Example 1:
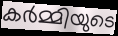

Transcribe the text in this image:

കർമ്മിയുടെ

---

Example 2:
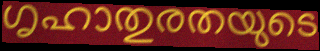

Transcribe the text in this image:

ഗൃഹാതുരതയുടെ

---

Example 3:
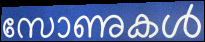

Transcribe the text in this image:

സോണുകൾ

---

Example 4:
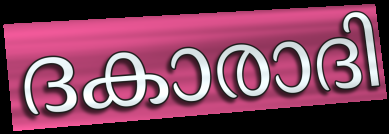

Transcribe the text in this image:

ദകാരാദി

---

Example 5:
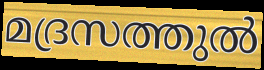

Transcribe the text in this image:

മദ്രസത്തുൽ